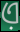
ଏ଼